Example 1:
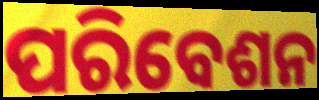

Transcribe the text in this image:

ପରିବେଶନ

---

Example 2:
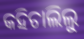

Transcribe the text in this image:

କହିଚାଲିଲୁ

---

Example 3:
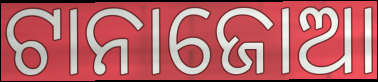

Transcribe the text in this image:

ଟାନାଜୋଆ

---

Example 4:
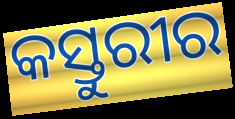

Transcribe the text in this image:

କସ୍ତୁରୀର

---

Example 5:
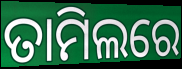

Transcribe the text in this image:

ତାମିଲରେ